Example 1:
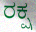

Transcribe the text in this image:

ರಕ್ಷ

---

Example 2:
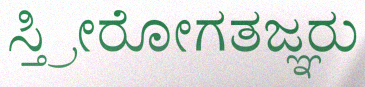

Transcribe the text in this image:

ಸ್ತ್ರೀರೋಗತಜ್ಞರು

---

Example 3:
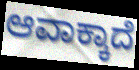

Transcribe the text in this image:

ಆವಾಕ್ಕಾದೆ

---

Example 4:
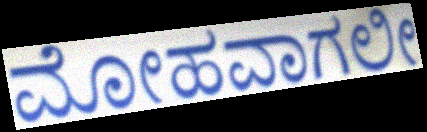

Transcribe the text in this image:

ಮೋಹವಾಗಲೀ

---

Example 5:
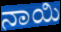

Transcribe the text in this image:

ನಾಯಿ